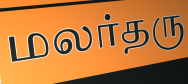
மலர்தரு